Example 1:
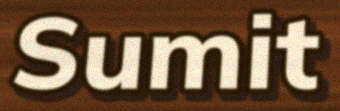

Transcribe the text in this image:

Sumit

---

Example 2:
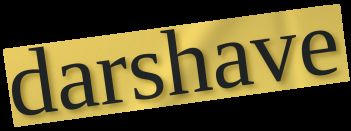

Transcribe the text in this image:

darshave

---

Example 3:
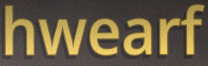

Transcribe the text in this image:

hwearf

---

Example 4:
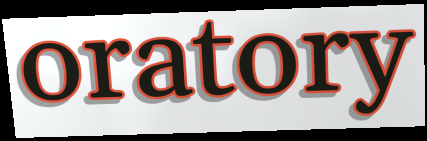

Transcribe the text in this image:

oratory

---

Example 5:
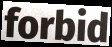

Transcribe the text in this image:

forbid